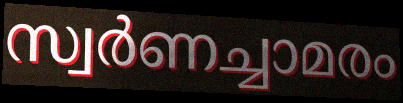
സ്വർണച്ചാമരം